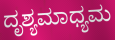
ದೃಶ್ಯಮಾಧ್ಯಮ